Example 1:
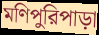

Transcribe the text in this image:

মণিপুরিপাড়া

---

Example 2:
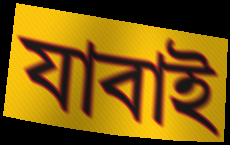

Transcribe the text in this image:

যাবাই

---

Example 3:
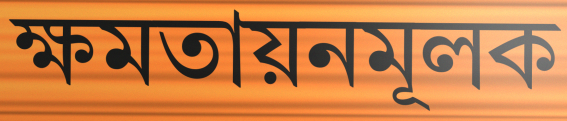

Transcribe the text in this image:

ক্ষমতায়নমূলক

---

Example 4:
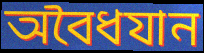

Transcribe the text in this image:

অবৈধযান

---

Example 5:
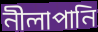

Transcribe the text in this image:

নীলাপানি